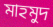
মাহমুদ